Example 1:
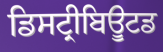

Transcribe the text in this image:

ਡਿਸਟ੍ਰੀਬਿਊਟਡ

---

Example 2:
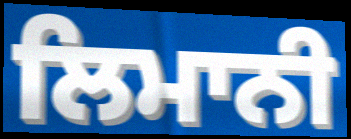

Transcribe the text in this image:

ਲਿਮਾਨੀ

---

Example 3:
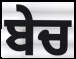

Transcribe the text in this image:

ਬੇਚ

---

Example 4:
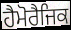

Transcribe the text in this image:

ਹੈਮੋਰੈਜਿਕ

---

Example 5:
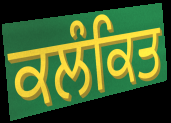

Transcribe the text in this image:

ਕਲੰਕਿਤ